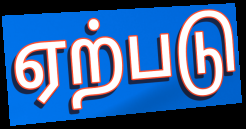
ஏற்படு